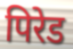
पिरेड